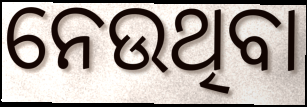
ନେଉଥିବା